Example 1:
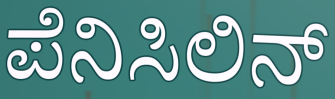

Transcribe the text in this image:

ಪೆನಿಸಿಲಿನ್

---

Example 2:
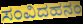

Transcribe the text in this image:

ಸಂವಿದಹನಂ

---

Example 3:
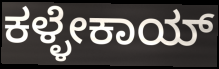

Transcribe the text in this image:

ಕಳ್ಳೇಕಾಯ್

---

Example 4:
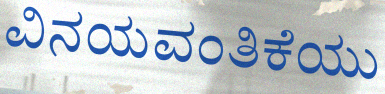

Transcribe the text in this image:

ವಿನಯವಂತಿಕೆಯು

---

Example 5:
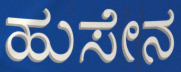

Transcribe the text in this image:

ಹುಸೇನ